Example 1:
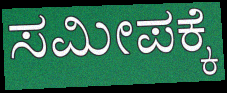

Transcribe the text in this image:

ಸಮೀಪಕ್ಕೆ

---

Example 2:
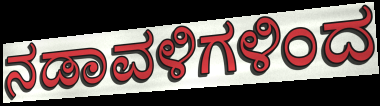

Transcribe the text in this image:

ನಡಾವಳಿಗಳಿಂದ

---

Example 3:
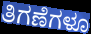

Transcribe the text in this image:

ತಿಗಣೆಗಳೂ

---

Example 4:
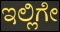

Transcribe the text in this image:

ಇಲ್ಲಿಗೇ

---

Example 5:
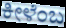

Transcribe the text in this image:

ಕೀಳೆಂಬ